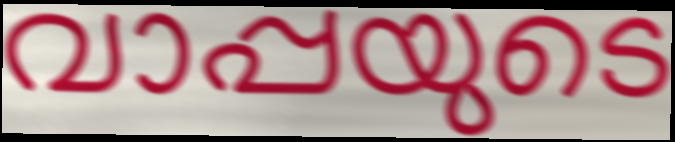
വാപ്പയുടെ